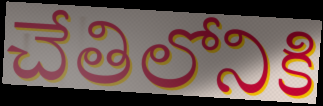
చేతిలోనికి